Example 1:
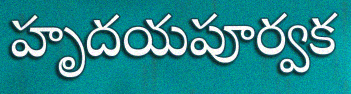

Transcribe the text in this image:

హృదయపూర్వక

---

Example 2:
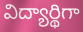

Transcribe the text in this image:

విద్యార్థిగా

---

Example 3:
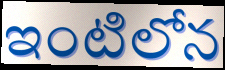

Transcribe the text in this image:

ఇంటిలోన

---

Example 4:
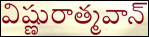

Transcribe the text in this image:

విష్ణురాత్మవాన్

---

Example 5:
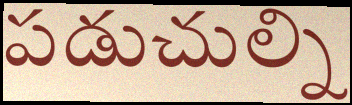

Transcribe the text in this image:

పడుచుల్ని